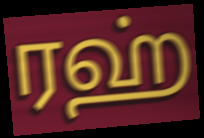
ரஹ்